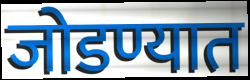
जोडण्यात